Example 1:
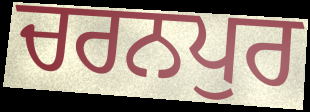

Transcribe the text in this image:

ਚਰਨਪੁਰ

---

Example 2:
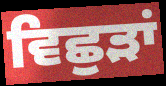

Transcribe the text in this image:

ਵਿਛੁੜਾਂ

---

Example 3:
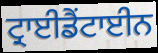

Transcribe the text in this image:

ਟ੍ਰਾਈਡੈਂਟਾਈਨ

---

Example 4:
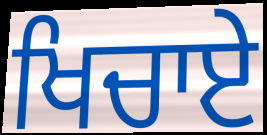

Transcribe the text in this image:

ਖਿਚਾਏ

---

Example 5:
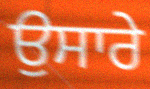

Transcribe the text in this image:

ਉਸਾਰੇ